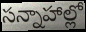
సన్నాహాల్లో